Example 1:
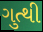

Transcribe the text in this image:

ગુત્થી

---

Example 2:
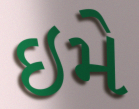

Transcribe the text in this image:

ઇમે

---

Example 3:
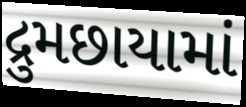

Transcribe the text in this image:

દ્રુમછાયામાં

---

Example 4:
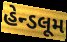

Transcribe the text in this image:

હેન્ડલૂમ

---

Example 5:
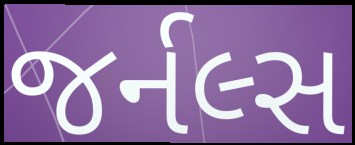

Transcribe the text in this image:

જર્નલ્સ